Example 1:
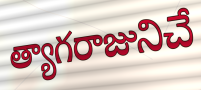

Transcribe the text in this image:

త్యాగరాజునిచే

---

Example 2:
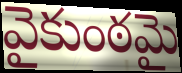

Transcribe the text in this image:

వైకుంఠమై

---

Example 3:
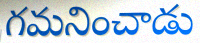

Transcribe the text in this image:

గమనించాడు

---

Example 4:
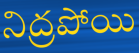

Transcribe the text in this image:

నిద్రపోయి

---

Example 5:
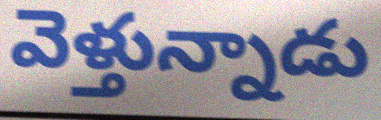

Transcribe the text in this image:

వెళ్తున్నాడు